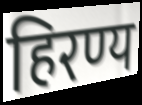
हिरण्य